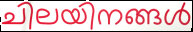
ചിലയിനങ്ങൾ